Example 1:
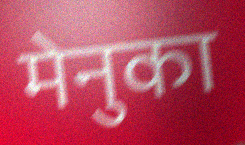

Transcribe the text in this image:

मेनुका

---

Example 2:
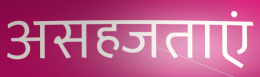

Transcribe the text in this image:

असहजताएं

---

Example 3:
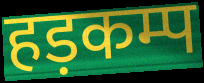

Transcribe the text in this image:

हड़कम्प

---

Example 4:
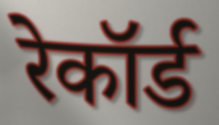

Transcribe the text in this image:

रेकॉर्ड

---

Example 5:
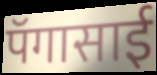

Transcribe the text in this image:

पॅगासाई